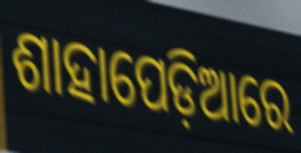
ଶାହାପେଡ଼ିଆରେ